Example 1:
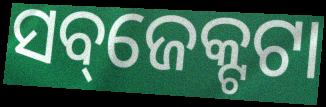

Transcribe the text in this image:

ସବ୍‌ଜେକ୍ଟଟା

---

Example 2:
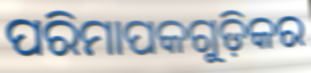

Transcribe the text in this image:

ପରିମାପକଗୁଡ଼ିକର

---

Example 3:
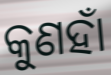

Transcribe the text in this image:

କୁଣହାଁ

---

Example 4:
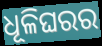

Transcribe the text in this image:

ଧୂଳିଘରର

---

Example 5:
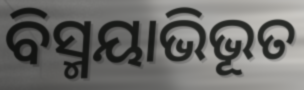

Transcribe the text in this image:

ବିସ୍ମୟାଭିଭୂତ